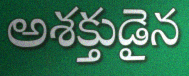
అశక్తుడైన